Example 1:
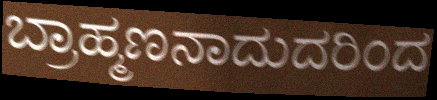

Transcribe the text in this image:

ಬ್ರಾಹ್ಮಣನಾದುದರಿಂದ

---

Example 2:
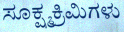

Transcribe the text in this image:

ಸೂಕ್ಷ್ಮಕ್ರಿಮಿಗಳು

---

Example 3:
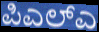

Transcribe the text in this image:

ಪಿಎಲ್ಎ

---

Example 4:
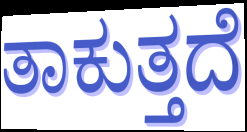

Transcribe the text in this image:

ತಾಕುತ್ತದೆ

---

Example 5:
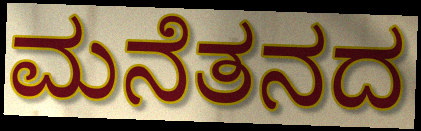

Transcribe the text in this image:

ಮನೆತನದ